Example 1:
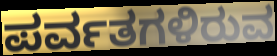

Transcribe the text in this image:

ಪರ್ವತಗಳಿರುವ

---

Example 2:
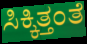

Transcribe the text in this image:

ಸಿಕ್ಕಿತ್ತಂತೆ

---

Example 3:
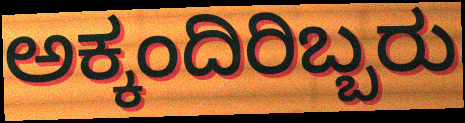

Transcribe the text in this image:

ಅಕ್ಕಂದಿರಿಬ್ಬರು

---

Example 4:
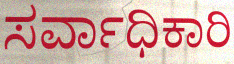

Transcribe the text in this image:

ಸರ್ವಾಧಿಕಾರಿ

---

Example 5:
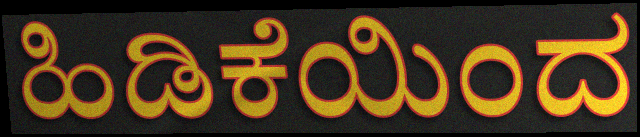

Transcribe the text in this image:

ಹಿಡಿಕೆಯಿಂದ